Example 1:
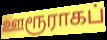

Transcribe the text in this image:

ஊரூராகப்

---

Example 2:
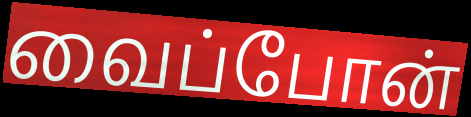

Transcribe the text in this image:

வைப்போன்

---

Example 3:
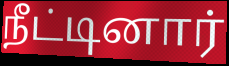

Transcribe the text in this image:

நீட்டினார்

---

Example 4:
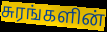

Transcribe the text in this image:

சுரங்களின்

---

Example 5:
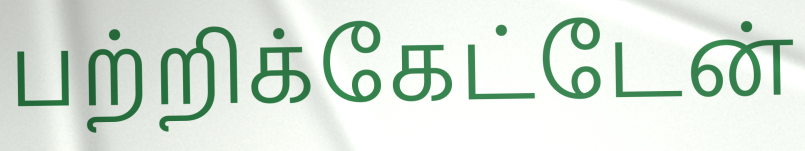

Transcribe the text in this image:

பற்றிக்கேட்டேன்